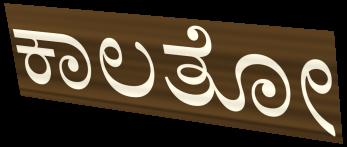
ಕಾಲತೋ